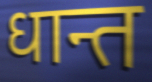
धान्त